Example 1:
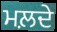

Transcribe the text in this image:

ਮਲ਼ਦੇ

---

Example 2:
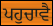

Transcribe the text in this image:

ਪਹੁਚਾਵੈ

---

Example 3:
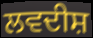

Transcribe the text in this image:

ਲਵਦੀਸ਼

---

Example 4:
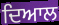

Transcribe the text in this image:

ਦਿਆਲ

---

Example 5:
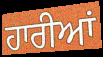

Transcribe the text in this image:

ਹਾਰੀਆਂ